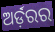
ଅର୍ଡ଼ରର